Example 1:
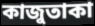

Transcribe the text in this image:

কাজুতাকা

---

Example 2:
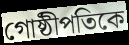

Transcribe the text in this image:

গোষ্ঠীপতিকে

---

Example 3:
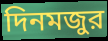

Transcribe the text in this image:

দিনমজুর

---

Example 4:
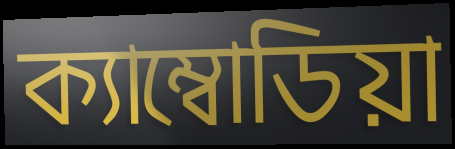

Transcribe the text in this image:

ক্যাম্বোডিয়া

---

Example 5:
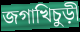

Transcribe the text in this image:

জগাখিচুড়ী